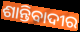
ଶାନ୍ତିବାଦୀର